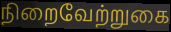
நிறைவேற்றுகை